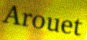
Arouet